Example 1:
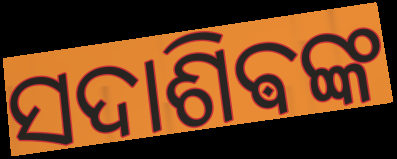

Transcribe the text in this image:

ସଦାଶିଵଙ୍କ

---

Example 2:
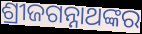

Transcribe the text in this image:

ଶ୍ରୀଜଗନ୍ନାଥଙ୍କର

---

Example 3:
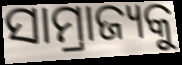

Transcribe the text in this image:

ସାମ୍ରାଜ୍ୟକୁ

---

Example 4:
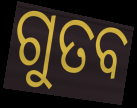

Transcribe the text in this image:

ଗୁତବ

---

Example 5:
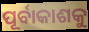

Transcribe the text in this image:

ପୂର୍ବାକାଶକୁ